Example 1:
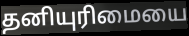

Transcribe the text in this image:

தனியுரிமையை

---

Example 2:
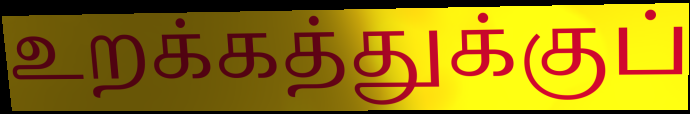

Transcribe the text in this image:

உறக்கத்துக்குப்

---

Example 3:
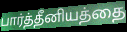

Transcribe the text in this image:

பார்த்தீனியத்தை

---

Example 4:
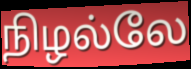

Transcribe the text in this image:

நிழல்லே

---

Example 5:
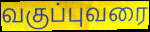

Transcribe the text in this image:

வகுப்புவரை